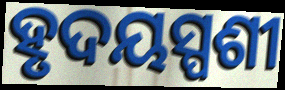
ହୃଦୟସ୍ପଶୀ